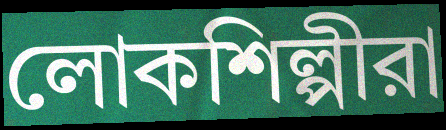
লোকশিল্পীরা